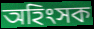
অহিংসক